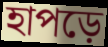
হাপড়ে